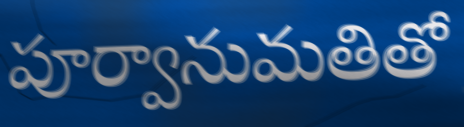
పూర్వానుమతితో